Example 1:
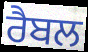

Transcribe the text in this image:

ਰੈਬਲ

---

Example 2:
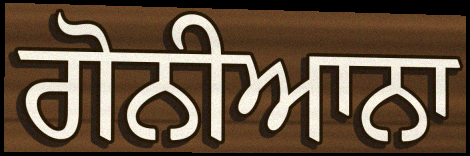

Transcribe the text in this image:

ਗੋਨੀਆਨਾ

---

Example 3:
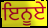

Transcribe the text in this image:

ਇਨੂਏ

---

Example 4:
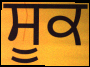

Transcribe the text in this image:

ਸੂਕ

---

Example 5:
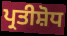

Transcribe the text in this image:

ਪ੍ਰਤੀਸ਼ੋਧ